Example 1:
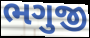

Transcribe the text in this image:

ભગુજી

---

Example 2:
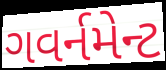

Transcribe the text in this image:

ગવર્નમેન્ટ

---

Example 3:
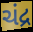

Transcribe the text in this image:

ચંદ્ર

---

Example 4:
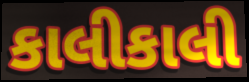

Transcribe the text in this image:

કાલીકાલી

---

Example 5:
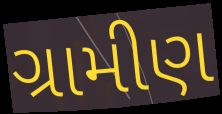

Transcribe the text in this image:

ગ્રામીણ